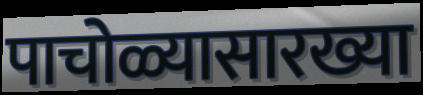
पाचोळ्यासारख्या